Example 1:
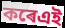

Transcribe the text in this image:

কৰেএই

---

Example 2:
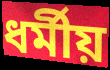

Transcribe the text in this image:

ধৰ্মীয়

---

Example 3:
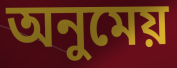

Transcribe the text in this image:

অনুমেয়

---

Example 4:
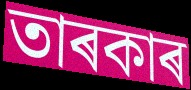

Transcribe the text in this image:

তাৰকাৰ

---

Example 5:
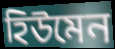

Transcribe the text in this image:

হিউমেন